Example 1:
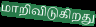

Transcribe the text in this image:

மாறிவிடுகிறது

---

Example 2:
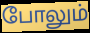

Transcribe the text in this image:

போலும்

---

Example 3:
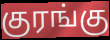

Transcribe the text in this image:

குரங்கு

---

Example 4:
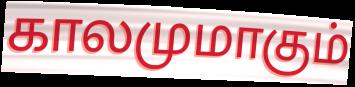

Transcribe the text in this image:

காலமுமாகும்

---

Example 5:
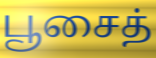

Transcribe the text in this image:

பூசைத்